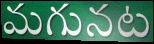
మగునట